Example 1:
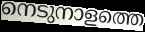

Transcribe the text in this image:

നെടുനാളത്തെ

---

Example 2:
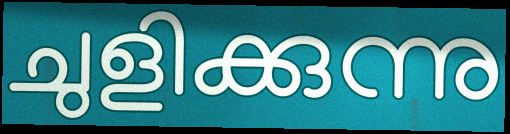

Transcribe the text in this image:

ചുളിക്കുന്നു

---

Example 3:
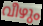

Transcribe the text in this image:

വീഴും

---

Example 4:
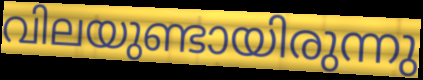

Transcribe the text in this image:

വിലയുണ്ടായിരുന്നു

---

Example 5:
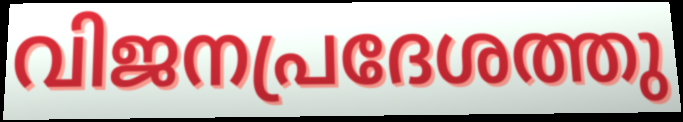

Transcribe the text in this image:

വിജനപ്രദേശത്തു